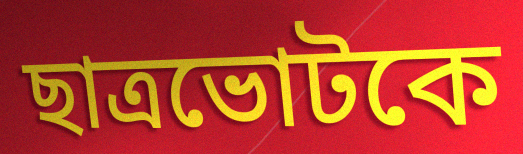
ছাত্রভোটকে